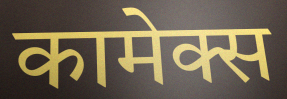
कामेक्स